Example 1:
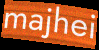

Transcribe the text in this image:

majhei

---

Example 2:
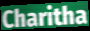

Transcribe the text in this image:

Charitha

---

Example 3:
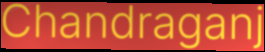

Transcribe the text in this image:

Chandraganj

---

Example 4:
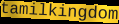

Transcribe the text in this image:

tamilkingdom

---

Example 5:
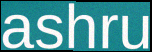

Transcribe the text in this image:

ashru